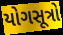
યોગસૂત્રો